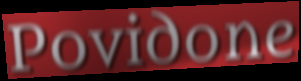
Povidone